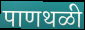
पाणथळी